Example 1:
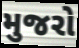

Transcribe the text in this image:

મુજરો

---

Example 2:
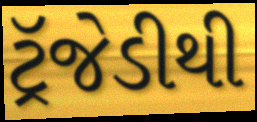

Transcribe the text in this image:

ટ્રૅજેડીથી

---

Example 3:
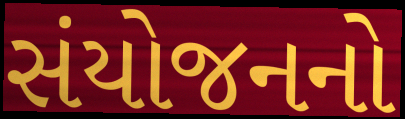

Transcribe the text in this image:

સંયોજનનો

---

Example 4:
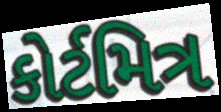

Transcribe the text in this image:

કોર્ટમિત્ર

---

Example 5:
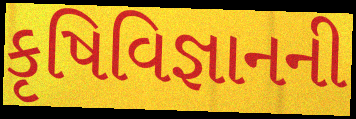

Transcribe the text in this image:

કૃષિવિજ્ઞાનની